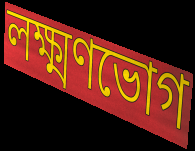
লক্ষ্মণভোগ